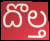
దొల్త